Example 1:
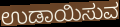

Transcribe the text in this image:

ಉಡಾಯಿಸುವ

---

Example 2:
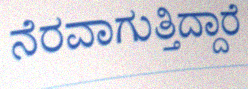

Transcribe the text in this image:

ನೆರವಾಗುತ್ತಿದ್ದಾರೆ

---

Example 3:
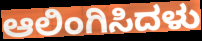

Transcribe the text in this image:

ಆಲಿಂಗಿಸಿದಳು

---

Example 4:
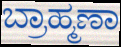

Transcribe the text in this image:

ಬ್ರಾಹ್ಮಣಾ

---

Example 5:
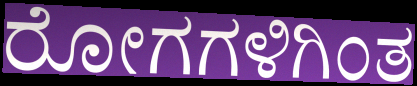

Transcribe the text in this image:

ರೋಗಗಳಿಗಿಂತ